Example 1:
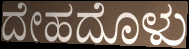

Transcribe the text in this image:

ದೇಹದೊಳು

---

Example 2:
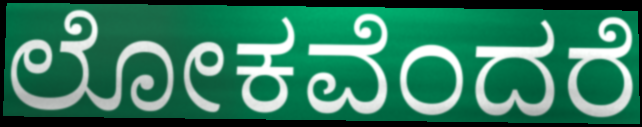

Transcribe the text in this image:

ಲೋಕವೆಂದರೆ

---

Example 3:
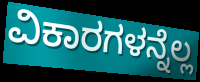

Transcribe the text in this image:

ವಿಕಾರಗಳನ್ನೆಲ್ಲ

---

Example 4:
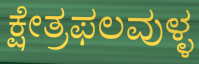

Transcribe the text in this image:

ಕ್ಷೇತ್ರಫಲವುಳ್ಳ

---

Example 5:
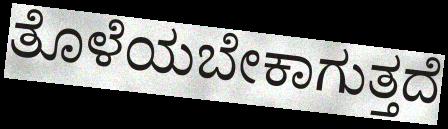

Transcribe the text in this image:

ತೊಳೆಯಬೇಕಾಗುತ್ತದೆ